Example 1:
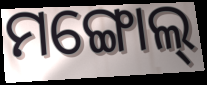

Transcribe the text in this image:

ମଙ୍ଗୋଲ୍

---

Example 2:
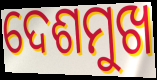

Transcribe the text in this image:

ଦେଶମୁଖ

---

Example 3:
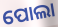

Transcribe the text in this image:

ପୋଲା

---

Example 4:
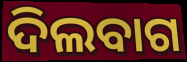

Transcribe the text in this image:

ଦିଲବାଗ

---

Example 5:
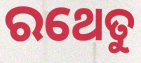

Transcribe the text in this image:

ରଥେତୁ